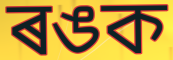
ৰঙক